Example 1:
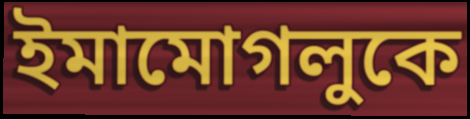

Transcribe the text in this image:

ইমামোগলুকে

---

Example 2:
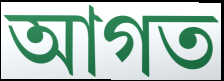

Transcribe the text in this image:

আগত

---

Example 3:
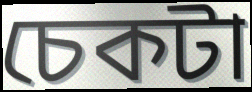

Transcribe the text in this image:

চেকটা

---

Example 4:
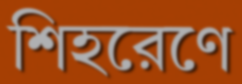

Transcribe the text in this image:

শিহরেণে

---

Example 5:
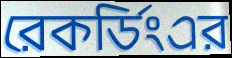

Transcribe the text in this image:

রেকর্ডিংএর